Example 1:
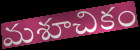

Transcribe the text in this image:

మశూచికం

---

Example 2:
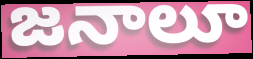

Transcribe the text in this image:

జనాలూ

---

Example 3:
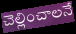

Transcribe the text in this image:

చెల్లించాలనే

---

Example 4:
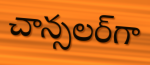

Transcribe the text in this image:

చాన్సలర్‌గా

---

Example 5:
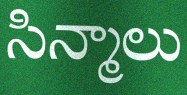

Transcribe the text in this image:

సిన్మాలు